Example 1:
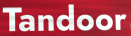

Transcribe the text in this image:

Tandoor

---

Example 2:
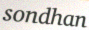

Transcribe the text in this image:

sondhan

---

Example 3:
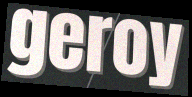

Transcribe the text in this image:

geroy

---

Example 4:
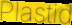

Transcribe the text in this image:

Plastid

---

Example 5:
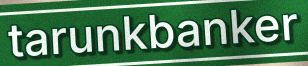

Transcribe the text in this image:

tarunkbanker